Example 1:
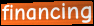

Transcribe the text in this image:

financing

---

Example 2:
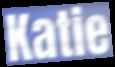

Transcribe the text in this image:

Katie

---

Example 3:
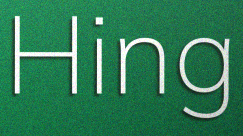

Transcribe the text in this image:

Hing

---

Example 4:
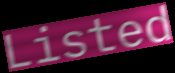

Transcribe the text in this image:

Listed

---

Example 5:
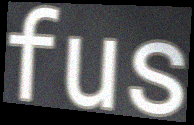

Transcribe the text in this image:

fus